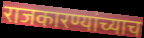
राजकारण्यांच्याच